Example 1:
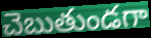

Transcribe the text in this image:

చెబుతుండగా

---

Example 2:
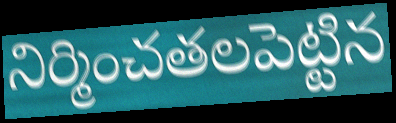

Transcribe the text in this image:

నిర్మించతలపెట్టిన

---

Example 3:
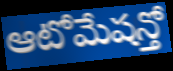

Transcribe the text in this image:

ఆటోమేషన్తో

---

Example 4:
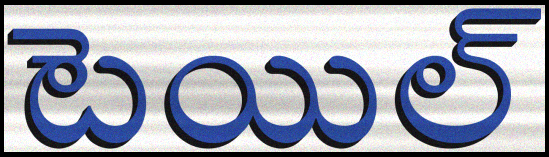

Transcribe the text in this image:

టెయిల్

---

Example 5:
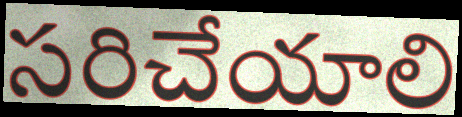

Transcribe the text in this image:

సరిచేయాలి